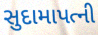
સુદામાપત્ની